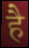
है